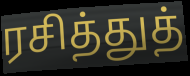
ரசித்துத்